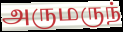
அருமருந்